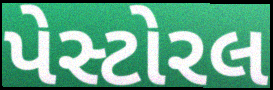
પેસ્ટોરલ